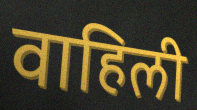
वाहिली